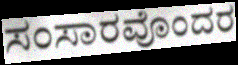
ಸಂಸಾರವೊಂದರ